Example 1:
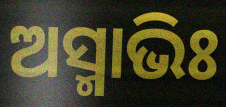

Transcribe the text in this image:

ଅସ୍ମାଭିଃ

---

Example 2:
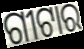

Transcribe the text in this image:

ଗୀଟାର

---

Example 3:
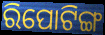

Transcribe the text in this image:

ରିପୋଟିଙ୍ଗ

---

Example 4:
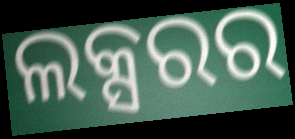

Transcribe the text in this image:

ଲକ୍ସରର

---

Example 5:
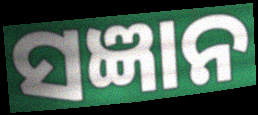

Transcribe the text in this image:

ସଜ୍ଞାନ